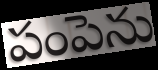
పంపెను